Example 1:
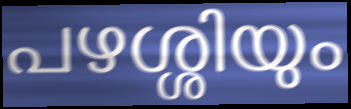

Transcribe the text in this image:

പഴശ്ശിയും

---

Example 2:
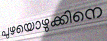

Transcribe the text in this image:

പുഴയൊഴുക്കിനെ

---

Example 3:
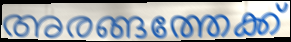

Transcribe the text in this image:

അരങ്ങത്തേക്ക്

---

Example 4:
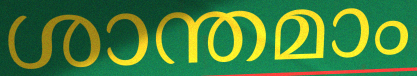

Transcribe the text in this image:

ശാന്തമാം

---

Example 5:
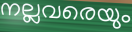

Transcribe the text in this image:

നല്ലവരെയും